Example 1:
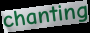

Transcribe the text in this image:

chanting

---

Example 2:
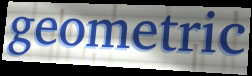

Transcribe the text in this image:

geometric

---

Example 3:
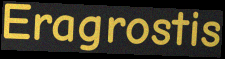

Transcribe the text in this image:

Eragrostis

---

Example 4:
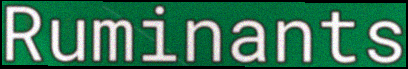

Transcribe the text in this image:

Ruminants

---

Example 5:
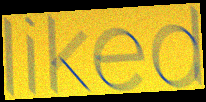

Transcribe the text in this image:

liked